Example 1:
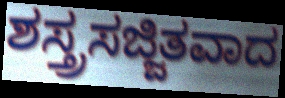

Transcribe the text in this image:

ಶಸ್ತ್ರಸಜ್ಜಿತವಾದ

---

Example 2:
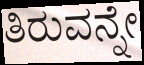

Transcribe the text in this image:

ತಿರುವನ್ನೇ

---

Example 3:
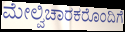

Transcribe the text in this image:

ಮೇಲ್ವಿಚಾರಕರೊಂದಿಗೆ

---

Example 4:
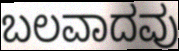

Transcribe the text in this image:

ಬಲವಾದವು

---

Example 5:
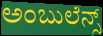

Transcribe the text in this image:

ಅಂಬುಲೆನ್ಸ್